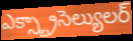
ఎక్స్ట్రాసెల్యులర్